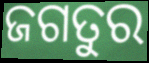
ଜଗତୁର